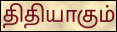
திதியாகும்